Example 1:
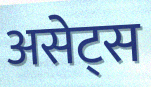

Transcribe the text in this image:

असेट्स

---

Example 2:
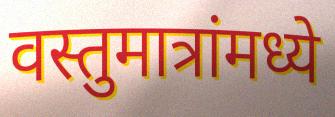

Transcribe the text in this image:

वस्तुमात्रांमध्ये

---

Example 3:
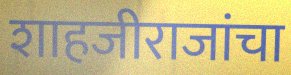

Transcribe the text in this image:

शाहजीराजांचा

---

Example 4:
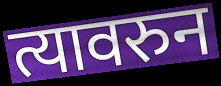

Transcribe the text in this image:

त्यावरुन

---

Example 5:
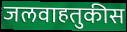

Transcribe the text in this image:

जलवाहतुकीस